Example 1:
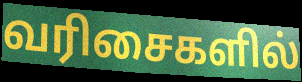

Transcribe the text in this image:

வரிசைகளில்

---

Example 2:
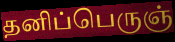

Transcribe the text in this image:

தனிப்பெருஞ்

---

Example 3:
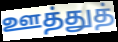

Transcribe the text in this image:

ஊத்துத்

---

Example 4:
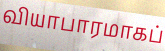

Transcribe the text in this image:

வியாபாரமாகப்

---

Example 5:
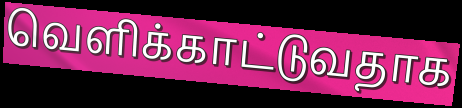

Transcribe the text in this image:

வெளிக்காட்டுவதாக